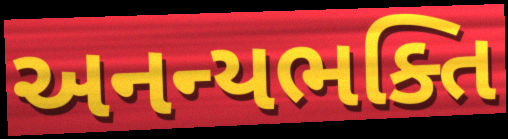
અનન્યભક્તિ